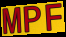
MPF